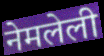
नेमलेली